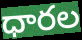
ధారల